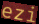
ezi